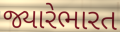
જ્યારેભારત